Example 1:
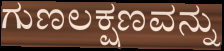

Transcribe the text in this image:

ಗುಣಲಕ್ಷಣವನ್ನು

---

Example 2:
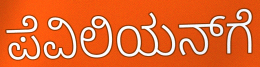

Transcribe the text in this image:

ಪೆವಿಲಿಯನ್‌ಗೆ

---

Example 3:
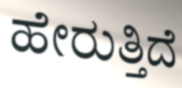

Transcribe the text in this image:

ಹೇರುತ್ತಿದೆ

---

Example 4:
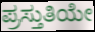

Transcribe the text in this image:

ಪ್ರಸ್ತುತಿಯೇ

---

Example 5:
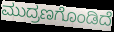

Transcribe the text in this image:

ಮುದ್ರಣಗೊಂಡಿದೆ